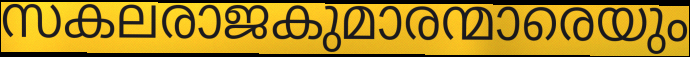
സകലരാജകുമാരന്മാരെയും